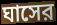
ঘাসের